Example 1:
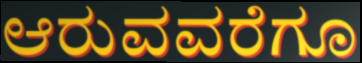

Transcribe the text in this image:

ಆರುವವರೆಗೂ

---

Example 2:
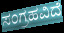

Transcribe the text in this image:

ಸಂಗ್ರಹವಿದೆ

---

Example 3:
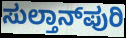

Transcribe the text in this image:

ಸುಲ್ತಾನ್‌ಪುರಿ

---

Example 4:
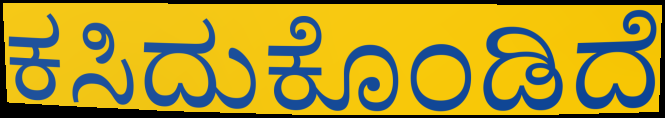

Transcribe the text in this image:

ಕಸಿದುಕೊಂಡಿದೆ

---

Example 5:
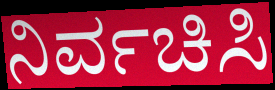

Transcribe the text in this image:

ನಿರ್ವಚಿಸಿ